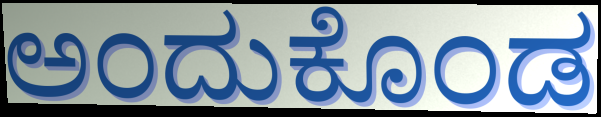
ಅಂದುಕೊಂಡ